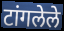
टांगलेले